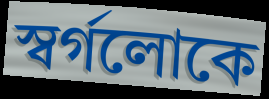
স্বর্গলোকে